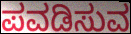
ಪವಡಿಸುವ